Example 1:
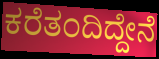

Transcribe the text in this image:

ಕರೆತಂದಿದ್ದೇನೆ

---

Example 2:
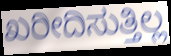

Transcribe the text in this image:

ಖರೀದಿಸುತ್ತಿಲ್ಲ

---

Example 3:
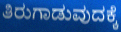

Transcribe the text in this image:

ತಿರುಗಾಡುವುದಕ್ಕೆ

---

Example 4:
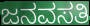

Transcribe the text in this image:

ಜನವಸತಿ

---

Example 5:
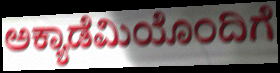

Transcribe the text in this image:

ಅಕ್ಯಾಡೆಮಿಯೊಂದಿಗೆ